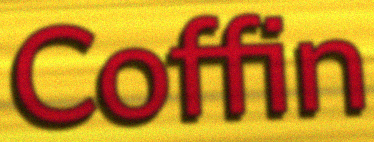
Coffin